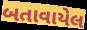
બતાવાયેલ